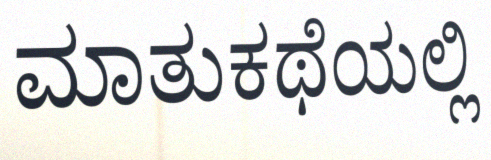
ಮಾತುಕಥೆಯಲ್ಲಿ